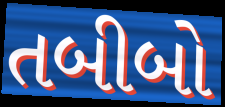
તબીબો